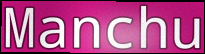
Manchu